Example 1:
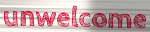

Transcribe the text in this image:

unwelcome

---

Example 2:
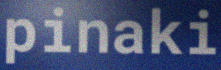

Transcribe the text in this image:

pinaki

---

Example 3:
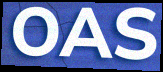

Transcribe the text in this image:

OAS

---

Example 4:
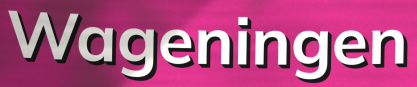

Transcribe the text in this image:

Wageningen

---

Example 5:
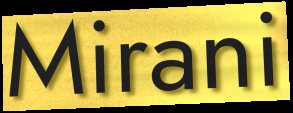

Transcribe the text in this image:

Mirani